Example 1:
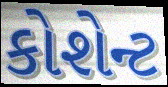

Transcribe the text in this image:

કોશેન્ટ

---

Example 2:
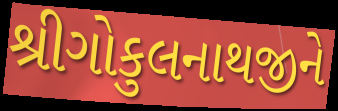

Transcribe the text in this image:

શ્રીગોકુલનાથજીને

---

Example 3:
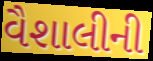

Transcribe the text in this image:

વૈશાલીની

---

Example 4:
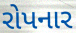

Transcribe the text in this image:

રોપનાર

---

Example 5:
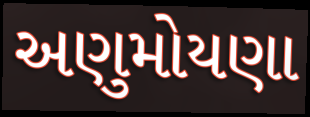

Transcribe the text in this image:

અણુમોયણા